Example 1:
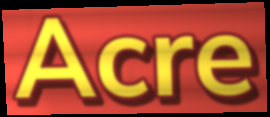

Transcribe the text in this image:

Acre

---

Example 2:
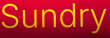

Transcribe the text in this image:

Sundry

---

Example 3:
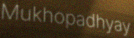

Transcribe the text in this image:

Mukhopadhyay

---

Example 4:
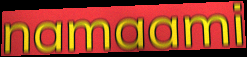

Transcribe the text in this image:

namaami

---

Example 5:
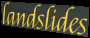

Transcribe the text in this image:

landslides